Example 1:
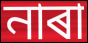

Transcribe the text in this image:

নাৰা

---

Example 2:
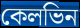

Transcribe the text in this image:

কেলভিন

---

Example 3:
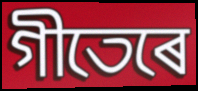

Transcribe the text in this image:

গীতেৰে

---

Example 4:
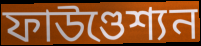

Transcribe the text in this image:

ফাউণ্ডেশ্যন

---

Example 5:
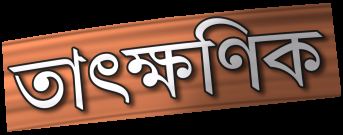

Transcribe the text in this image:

তাৎক্ষণিক